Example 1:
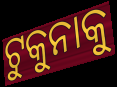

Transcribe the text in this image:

ଟୁକୁନାକୁ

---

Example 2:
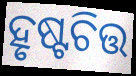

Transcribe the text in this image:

ହୃଷ୍ଟଚିତ୍ତ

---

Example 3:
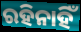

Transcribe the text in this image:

ରହିନାହିଁ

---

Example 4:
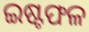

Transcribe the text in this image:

ଇଷ୍ଟଫଳ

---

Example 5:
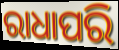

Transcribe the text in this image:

ରାଧାପରି